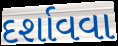
દર્શાવવા